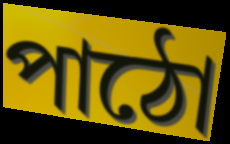
পাঠো